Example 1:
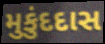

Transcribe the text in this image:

મુકુંદદાસ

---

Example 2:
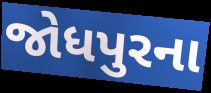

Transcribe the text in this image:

જોધપુરના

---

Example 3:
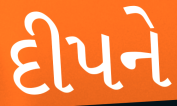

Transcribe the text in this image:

દીપને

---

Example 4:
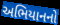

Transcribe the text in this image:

અભિયાનનો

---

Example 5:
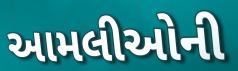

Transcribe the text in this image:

આમલીઓની